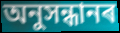
অনুসন্ধানৰ